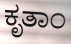
ಕೃತಾಂ